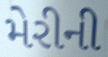
મેરીની